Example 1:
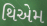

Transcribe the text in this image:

થિએમ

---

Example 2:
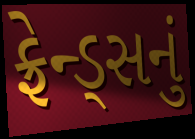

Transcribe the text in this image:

ફ્રેન્ડ્સનું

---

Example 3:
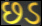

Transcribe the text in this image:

છડ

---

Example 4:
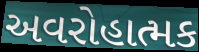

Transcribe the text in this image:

અવરોહાત્મક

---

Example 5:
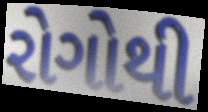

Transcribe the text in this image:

રોગોથી